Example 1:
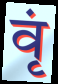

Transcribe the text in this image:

वृं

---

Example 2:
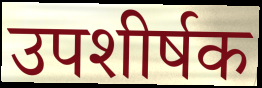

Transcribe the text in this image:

उपशीर्षक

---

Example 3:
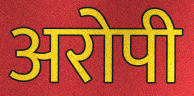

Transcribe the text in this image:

अरोपी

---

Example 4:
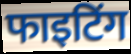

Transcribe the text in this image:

फाइटिंग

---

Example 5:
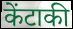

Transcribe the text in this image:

केंटाकी